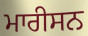
ਮਾਰੀਸਨ